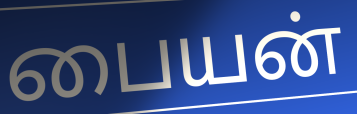
பையன்